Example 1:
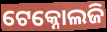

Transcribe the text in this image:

ଟେକ୍ନୋଲଜି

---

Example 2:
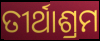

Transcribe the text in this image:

ତୀର୍ଥାଶ୍ରମ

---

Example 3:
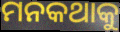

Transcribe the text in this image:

ମନକଥାକୁ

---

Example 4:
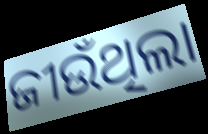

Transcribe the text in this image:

ଜୀଉଁଥିଲା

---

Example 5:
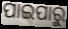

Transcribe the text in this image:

ପାଇପାରୁ